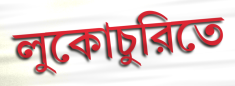
লুকোচুরিতে